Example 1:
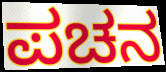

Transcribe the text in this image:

ಪಚನ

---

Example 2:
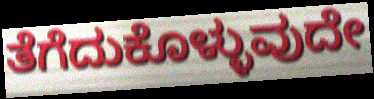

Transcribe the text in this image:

ತೆಗೆದುಕೊಳ್ಳುವುದೇ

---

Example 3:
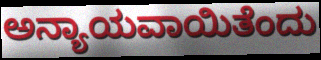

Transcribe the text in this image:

ಅನ್ಯಾಯವಾಯಿತೆಂದು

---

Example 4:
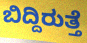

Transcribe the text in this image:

ಬಿದ್ದಿರುತ್ತೆ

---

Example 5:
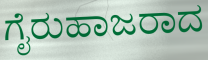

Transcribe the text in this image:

ಗೈರುಹಾಜರಾದ